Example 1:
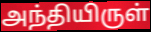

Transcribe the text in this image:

அந்தியிருள்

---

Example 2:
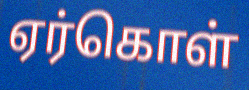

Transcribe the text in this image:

ஏர்கொள்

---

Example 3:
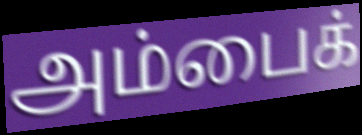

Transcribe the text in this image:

அம்பைக்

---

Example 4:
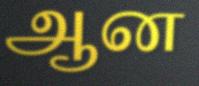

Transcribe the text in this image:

ஆன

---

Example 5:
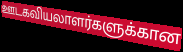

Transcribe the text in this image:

ஊடகவியலாளர்களுக்கான